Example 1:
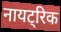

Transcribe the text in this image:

नायट्रिक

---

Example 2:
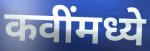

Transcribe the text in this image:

कवींमध्ये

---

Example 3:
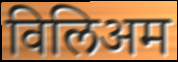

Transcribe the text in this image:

विलिअम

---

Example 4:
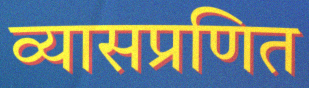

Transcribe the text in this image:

व्यासप्रणित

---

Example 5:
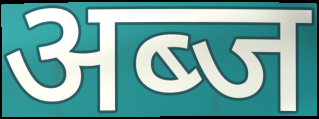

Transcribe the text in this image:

अब्ज